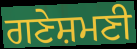
ਗਣੇਸ਼ਮਣੀ